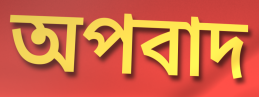
অপবাদ